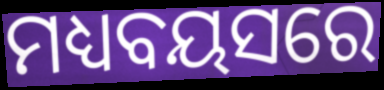
ମଧ୍ୟବୟସରେ